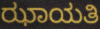
ಝಾಯತಿ